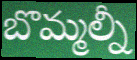
బొమ్మల్నీ